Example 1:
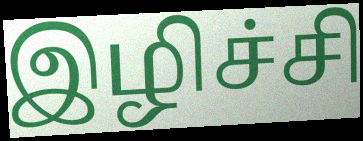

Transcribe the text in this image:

இழிச்சி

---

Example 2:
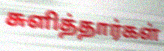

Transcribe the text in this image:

சுளித்தார்கள்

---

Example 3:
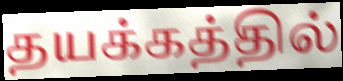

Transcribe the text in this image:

தயக்கத்தில்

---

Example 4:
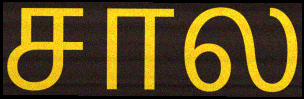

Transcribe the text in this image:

சால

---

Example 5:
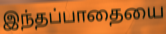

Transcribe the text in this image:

இந்தப்பாதையை